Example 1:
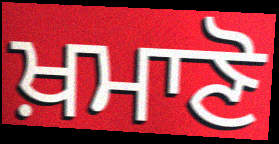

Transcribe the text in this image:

ਖ਼ਮਾਣੋ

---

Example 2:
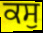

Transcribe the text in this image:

ਕਸੁ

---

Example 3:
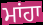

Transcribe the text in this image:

ਮਾਂਹਾ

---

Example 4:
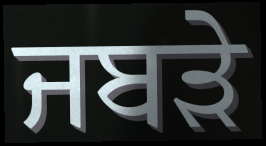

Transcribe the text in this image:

ਜਬੜੇ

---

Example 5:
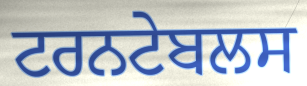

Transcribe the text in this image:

ਟਰਨਟੇਬਲਸ